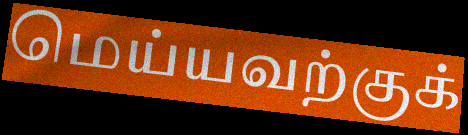
மெய்யவற்குக்